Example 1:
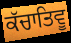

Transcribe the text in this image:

ਕੱਚਾਤਿਵੂ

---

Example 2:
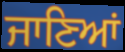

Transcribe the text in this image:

ਜਾਣਿਆਂ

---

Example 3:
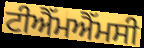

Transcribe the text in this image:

ਟੀਐੱਮਐੱਮਸੀ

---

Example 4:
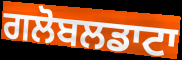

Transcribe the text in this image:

ਗਲੋਬਲਡਾਟਾ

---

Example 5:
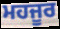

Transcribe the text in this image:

ਮਹਜੂਰ